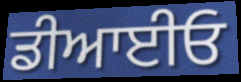
ਡੀਆਈਓ